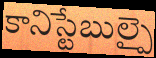
కానిస్టేబుల్పై